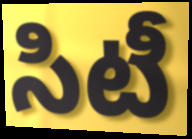
సిటీ